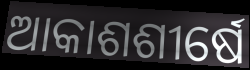
ଆକାଶଶୀର୍ଷେ